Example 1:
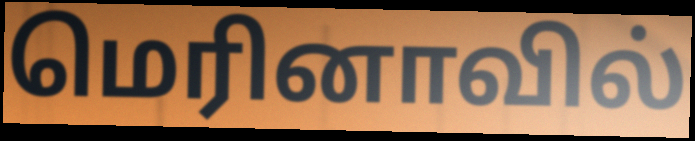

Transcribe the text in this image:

மெரினாவில்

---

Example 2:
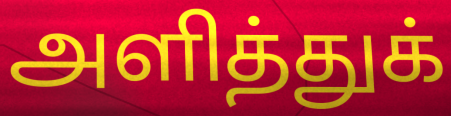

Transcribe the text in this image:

அளித்துக்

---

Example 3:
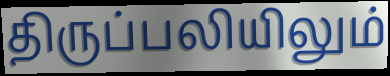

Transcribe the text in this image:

திருப்பலியிலும்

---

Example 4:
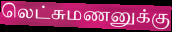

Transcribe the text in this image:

லெட்சுமணனுக்கு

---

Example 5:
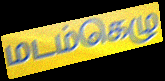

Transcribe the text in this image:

மடம்கெழு